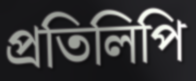
প্রতিলিপি